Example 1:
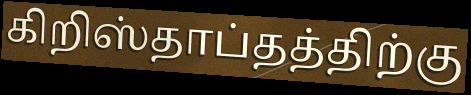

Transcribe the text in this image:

கிறிஸ்தாப்தத்திற்கு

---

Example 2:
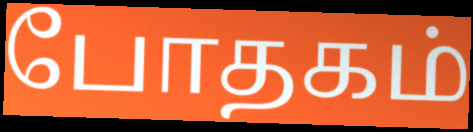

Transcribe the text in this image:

போதகம்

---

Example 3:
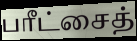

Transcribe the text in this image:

பரீட்சைத்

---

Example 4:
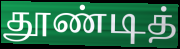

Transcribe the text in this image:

தூண்டித்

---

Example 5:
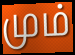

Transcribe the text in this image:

மும்